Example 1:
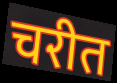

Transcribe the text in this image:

चरीत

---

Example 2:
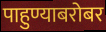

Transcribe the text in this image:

पाहुण्याबरोबर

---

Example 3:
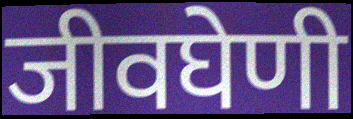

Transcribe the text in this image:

जीवघेणी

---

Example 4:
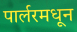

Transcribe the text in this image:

पार्लरमधून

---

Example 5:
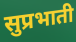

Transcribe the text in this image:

सुप्रभाती